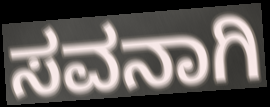
ಸವನಾಗಿ